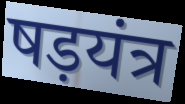
षड़यंत्र